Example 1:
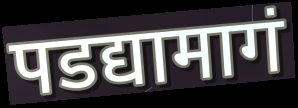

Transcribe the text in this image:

पडद्यामागं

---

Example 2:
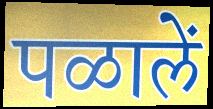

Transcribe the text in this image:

पळालें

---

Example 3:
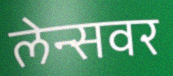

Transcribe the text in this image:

लेन्सवर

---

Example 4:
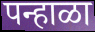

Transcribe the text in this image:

पन्हाळा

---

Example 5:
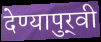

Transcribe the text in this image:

देण्यापुर्वी